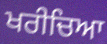
ਖਰੀਚਿਆ